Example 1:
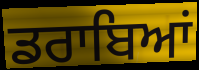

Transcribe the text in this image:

ਡਰਾਬਿਆਂ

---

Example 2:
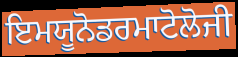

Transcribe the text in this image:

ਇਮਯੂਨੋਡਰਮਾਟੋਲੋਜੀ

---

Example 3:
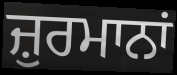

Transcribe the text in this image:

ਜ਼ੁਰਮਾਨਾਂ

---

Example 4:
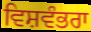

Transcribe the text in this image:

ਵਿਸ਼ਵੰਭਰਾ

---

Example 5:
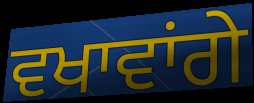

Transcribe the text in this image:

ਵਖਾਵਾਂਗੇ